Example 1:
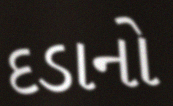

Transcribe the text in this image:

દડાનો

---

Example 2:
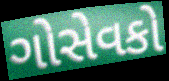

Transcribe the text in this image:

ગોસેવકો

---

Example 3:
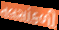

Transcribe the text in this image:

તલસાંકળી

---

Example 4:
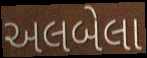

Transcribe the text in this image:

અલબેલા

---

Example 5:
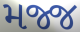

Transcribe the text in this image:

મજ્જ